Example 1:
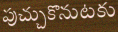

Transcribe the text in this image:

పుచ్చుకొనుటకు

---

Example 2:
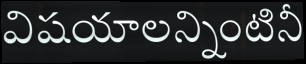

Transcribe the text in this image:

విషయాలన్నింటినీ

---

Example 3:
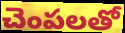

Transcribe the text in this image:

చెంపలతో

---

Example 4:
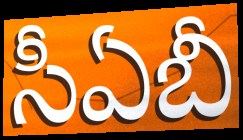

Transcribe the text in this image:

సీఏబీ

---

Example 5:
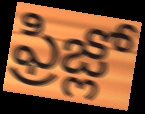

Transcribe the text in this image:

ఫ్రిజ్లో